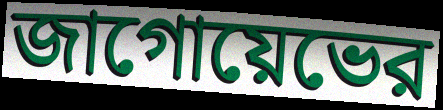
জাগোয়েভের